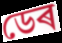
ডেৰ